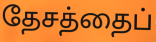
தேசத்தைப்